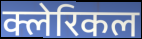
क्लेरिकल